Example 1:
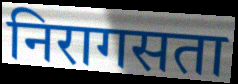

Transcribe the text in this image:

निरागसता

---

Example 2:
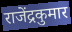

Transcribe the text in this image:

राजेंद्रकुमार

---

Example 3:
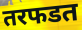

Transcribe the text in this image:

तरफडत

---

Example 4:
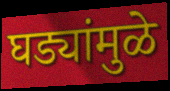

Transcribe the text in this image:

घड्यांमुळे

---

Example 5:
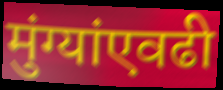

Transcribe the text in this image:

मुंग्यांएवढी